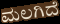
ಮಲಗಿದೆ